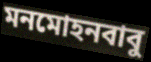
মনমোহনবাবু